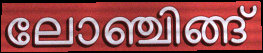
ലോഞ്ചിങ്ങ്